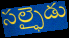
సల్ఫైడు